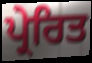
ਪ੍ਰੇਰਿਤ